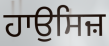
ਹਾਉਸਿਜ਼